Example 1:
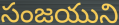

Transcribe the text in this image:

సంజయుని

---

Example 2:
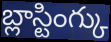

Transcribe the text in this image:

బ్లాస్టింగ్కు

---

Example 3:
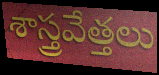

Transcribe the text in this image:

శాస్త్రవేత్తలు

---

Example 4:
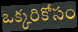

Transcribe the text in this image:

ఒక్కరికోసం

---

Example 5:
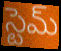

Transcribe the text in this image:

స్టెమ్